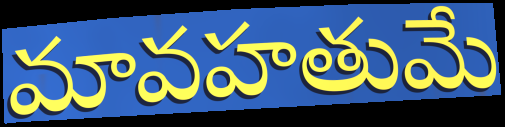
మావహతుమే